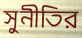
সুনীতির